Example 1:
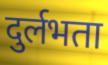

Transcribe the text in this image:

दुर्लभता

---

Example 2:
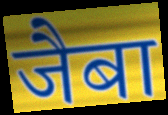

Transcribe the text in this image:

जैबा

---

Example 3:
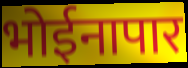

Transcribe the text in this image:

भोईनापार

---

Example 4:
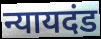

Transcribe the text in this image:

न्यायदंड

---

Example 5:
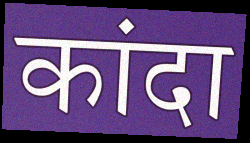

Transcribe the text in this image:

कांदा